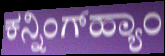
ಕನ್ನಿಂಗ್‌ಹ್ಯಾಂ